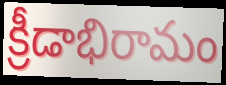
క్రీడాభిరామం